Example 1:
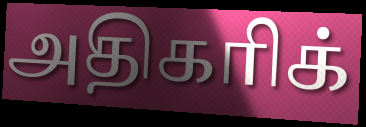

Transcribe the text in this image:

அதிகரிக்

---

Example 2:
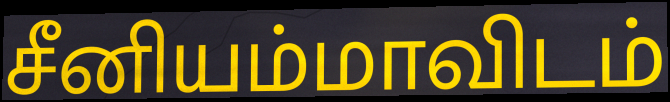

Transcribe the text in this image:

சீனியம்மாவிடம்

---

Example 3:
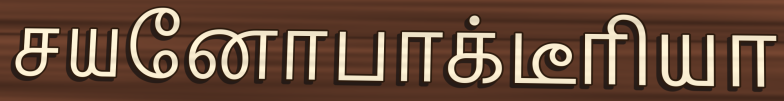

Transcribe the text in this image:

சயனோபாக்டீரியா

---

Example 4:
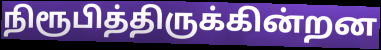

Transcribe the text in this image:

நிரூபித்திருக்கின்றன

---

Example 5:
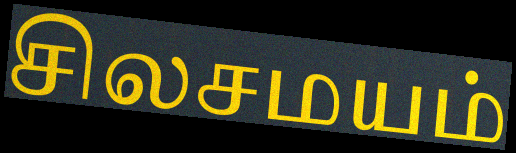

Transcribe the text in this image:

சிலசமயம்